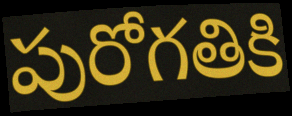
పురోగతికి